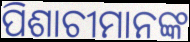
ପିଶାଚୀମାନଙ୍କ